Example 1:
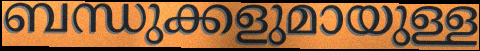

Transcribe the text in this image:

ബന്ധുക്കളുമായുള്ള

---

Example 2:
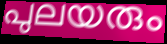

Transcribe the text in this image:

പുലയരും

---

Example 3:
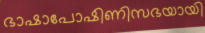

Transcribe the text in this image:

ഭാഷാപോഷിണിസഭയായി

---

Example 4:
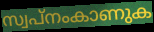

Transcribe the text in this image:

സ്വപ്നംകാണുക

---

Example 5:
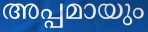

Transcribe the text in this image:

അപ്പമായും